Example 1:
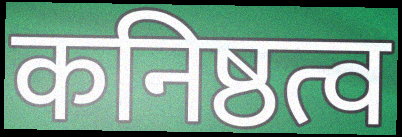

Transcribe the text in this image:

कनिष्ठत्व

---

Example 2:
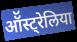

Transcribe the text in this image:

ऑॅस्ट्रेलिया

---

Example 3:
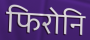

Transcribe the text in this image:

फिरोनि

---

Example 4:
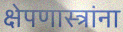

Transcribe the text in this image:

क्षेपणास्त्रांना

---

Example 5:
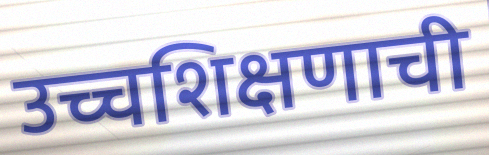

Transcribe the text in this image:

उच्चशिक्षणाची